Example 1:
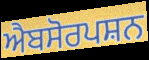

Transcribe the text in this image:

ਐਬਸੋਰਪਸ਼ਨ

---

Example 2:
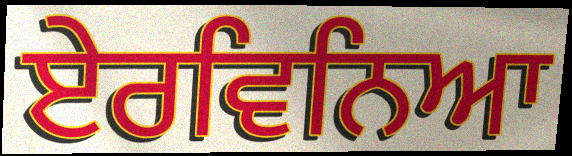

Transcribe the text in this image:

ਏਰਵਿਨਿਆ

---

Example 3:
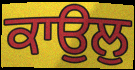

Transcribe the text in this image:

ਕਾਉਲੁ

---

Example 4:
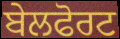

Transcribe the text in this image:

ਬੇਲਫੋਰਟ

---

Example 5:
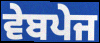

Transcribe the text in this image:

ਵੇਬਪੇਜ